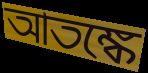
আতঙ্কে